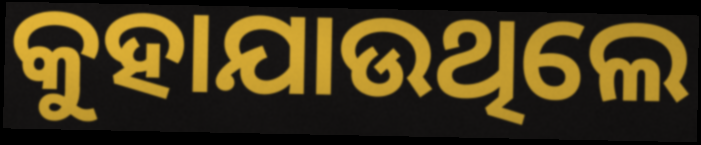
କୁହାଯାଉଥିଲେ